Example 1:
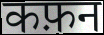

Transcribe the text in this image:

कफ़न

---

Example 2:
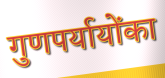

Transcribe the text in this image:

गुणपर्यायोंका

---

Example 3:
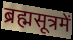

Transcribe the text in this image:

ब्रह्मसूत्रमें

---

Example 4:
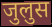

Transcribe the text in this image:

जुलुस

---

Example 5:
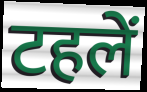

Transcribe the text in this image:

टहलें